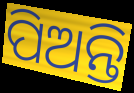
ପିଅନ୍ତି